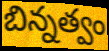
బిన్నత్వం